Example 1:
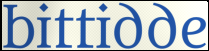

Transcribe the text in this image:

bittidde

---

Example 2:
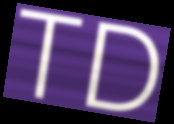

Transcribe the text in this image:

TD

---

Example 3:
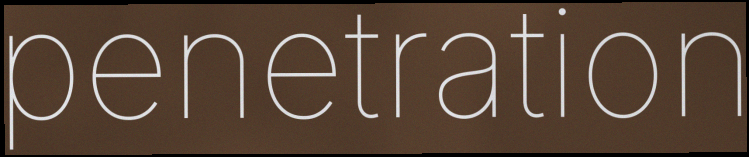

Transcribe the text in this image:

penetration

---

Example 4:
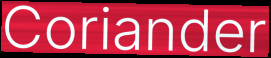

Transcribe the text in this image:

Coriander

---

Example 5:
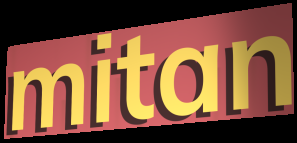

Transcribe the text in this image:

mitan